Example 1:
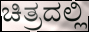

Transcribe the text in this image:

ಚಿತ್ರದಲ್ಲಿ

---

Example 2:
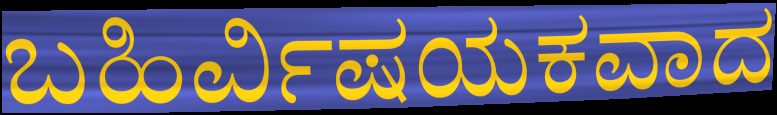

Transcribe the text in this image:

ಬಹಿರ್ವಿಷಯಕವಾದ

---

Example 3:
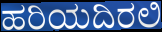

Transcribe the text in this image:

ಹರಿಯದಿರಲಿ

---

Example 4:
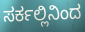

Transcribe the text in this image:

ಸರ್ಕಲ್ಲಿನಿಂದ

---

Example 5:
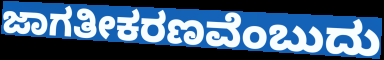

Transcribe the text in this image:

ಜಾಗತೀಕರಣವೆಂಬುದು